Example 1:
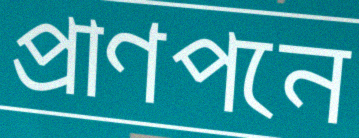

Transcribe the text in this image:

প্রাণপনে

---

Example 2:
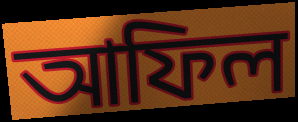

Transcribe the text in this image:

আফিল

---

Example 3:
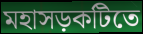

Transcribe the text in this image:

মহাসড়কটিতে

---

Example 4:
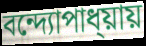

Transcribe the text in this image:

বন্দ্যোপাধ্য়ায়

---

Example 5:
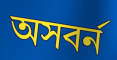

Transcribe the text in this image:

অসবর্ন